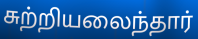
சுற்றியலைந்தார்